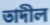
তাদীল